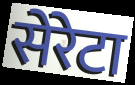
सेरेटा